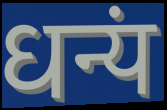
धन्यं